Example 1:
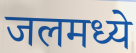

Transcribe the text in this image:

जलमध्ये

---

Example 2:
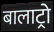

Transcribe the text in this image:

बालाट्रो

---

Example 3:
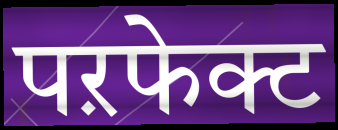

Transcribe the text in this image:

पऱफेक्ट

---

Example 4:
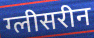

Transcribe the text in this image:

ग्लीसरीन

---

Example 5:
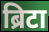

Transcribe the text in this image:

ब्रिटा